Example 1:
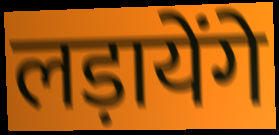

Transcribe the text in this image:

लड़ायेंगे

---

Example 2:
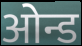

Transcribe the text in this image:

ओन्ड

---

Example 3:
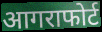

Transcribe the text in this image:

आगराफोर्ट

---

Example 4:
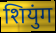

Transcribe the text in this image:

शियुंग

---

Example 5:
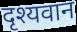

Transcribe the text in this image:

दृश्यवान